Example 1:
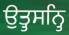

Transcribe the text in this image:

ਉਤ੍ਤਸਨ੍ਤਿ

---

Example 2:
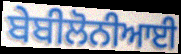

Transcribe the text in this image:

ਬੇਬੀਲੋਨੀਆਈ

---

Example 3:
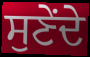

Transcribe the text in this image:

ਸੁਣੇਂਦੇ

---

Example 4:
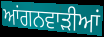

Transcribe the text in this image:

ਆਂਗਨਵਾੜੀਆਂ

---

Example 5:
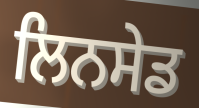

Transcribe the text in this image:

ਲਿਨਸੇਡ